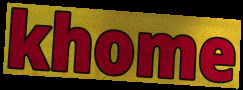
khome